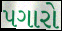
પગારો